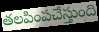
తలపింపచేస్తుంది